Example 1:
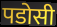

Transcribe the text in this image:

पडोसी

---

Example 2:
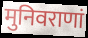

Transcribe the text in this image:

मुनिवराणां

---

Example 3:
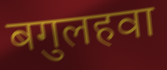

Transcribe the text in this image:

बगुलहवा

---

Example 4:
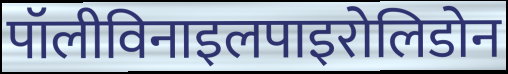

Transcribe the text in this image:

पॉलीविनाइलपाइरोलिडोन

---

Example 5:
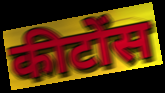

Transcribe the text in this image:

कीटोंस